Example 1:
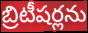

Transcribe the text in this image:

బ్రిటీషర్లను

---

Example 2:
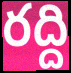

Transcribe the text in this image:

రద్ది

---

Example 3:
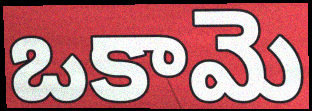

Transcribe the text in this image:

ఒకామె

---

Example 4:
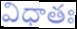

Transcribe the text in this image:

విధాతః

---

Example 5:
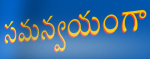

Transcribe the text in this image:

సమన్వయంగా